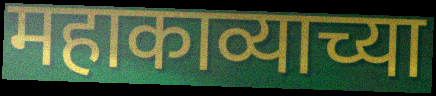
महाकाव्याच्या